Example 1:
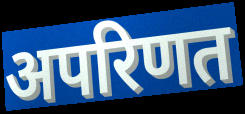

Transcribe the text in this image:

अपरिणत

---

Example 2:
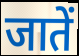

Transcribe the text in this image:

जातें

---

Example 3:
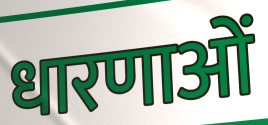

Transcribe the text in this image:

धारणाओं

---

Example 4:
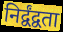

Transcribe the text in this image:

निर्द्वंद्वता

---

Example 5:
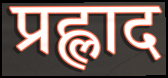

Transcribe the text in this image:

प्रह्लाद